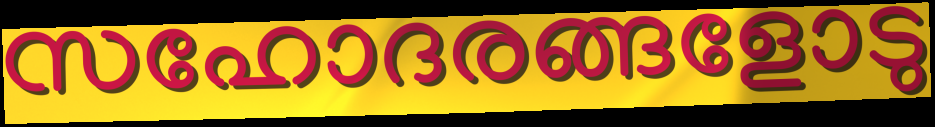
സഹോദരങ്ങളോടു